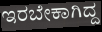
ಇರಬೇಕಾಗಿದ್ದ